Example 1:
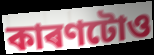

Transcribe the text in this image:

কাৰণটোও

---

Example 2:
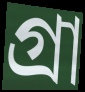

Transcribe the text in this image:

গ্ৰা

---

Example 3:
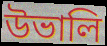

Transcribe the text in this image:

উভালি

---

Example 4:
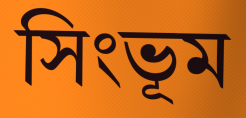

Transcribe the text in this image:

সিংভূম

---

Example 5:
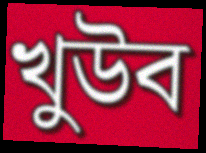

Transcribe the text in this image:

খুউব